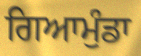
ਗਿਆਮੁੰਡਾ